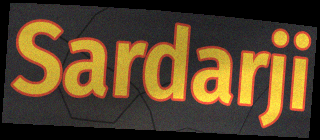
Sardarji